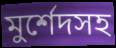
মুর্শেদসহ